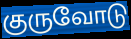
குருவோடு